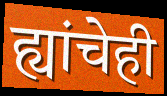
ह्यांचेही